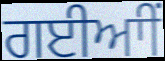
ਗਈਆੀਂ